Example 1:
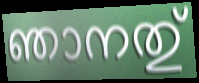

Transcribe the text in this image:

ഞാനതു്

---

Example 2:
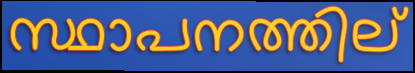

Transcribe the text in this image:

സ്ഥാപനത്തില്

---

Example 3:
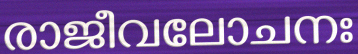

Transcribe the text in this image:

രാജീവലോചനഃ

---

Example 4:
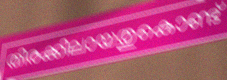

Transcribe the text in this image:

തിരക്കിലായതുകൊണ്ട്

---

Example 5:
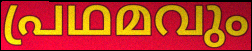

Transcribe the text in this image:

പ്രഥമവും